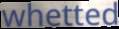
whetted